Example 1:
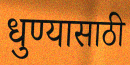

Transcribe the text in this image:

धुण्यासाठी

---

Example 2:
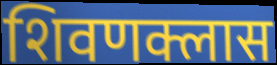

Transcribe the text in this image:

शिवणक्लास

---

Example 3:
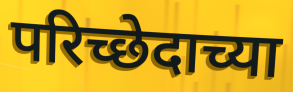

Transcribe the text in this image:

परिच्छेदाच्या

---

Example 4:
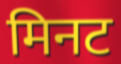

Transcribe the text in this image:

मिनट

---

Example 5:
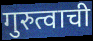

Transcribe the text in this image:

गुरुत्वाची